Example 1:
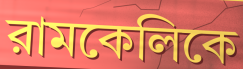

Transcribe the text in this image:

রামকেলিকে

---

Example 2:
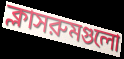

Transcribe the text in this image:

ক্লাসরুমগুলো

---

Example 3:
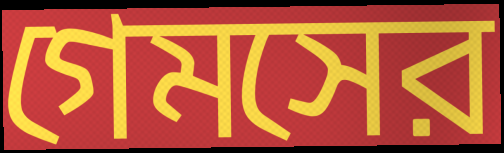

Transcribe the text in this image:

গেমসের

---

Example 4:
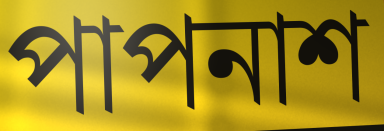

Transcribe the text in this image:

পাপনাশ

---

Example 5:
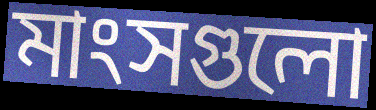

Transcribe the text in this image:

মাংসগুলো